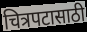
चित्रपटासाठी